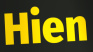
Hien